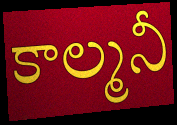
కాల్మనీ